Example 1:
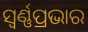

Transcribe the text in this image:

ସ୍ୱର୍ଣ୍ଣପ୍ରଭାର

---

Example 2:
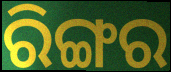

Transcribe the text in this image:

ରିଙ୍ଗର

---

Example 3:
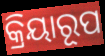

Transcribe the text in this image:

କ୍ରିୟାରୂପ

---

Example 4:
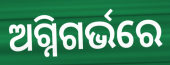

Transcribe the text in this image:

ଅଗ୍ନିଗର୍ଭରେ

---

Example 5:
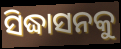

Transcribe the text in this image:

ସିଦ୍ଧାସନକୁ